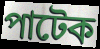
পাটেক